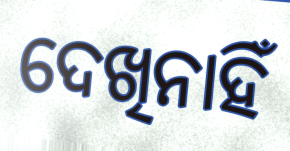
ଦେଖିନାହିଁ